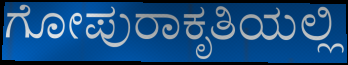
ಗೋಪುರಾಕೃತಿಯಲ್ಲಿ